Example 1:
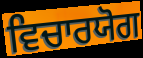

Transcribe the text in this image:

ਵਿਚਾਰਯੋਗ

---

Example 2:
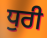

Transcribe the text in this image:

ਧੁਰੀ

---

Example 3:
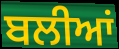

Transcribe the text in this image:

ਬਲੀਆਂ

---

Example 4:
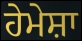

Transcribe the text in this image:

ਹੇਮੇਸ਼ਾ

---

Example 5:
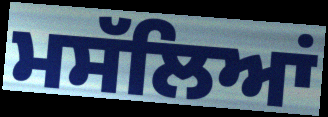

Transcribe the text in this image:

ਮਸੱਲਿਆਂ